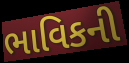
ભાવિકની